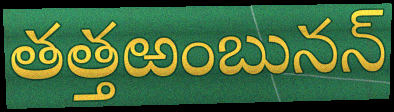
తత్తఱంబునన్